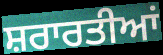
ਸ਼ਰਾਰਤੀਆਂ